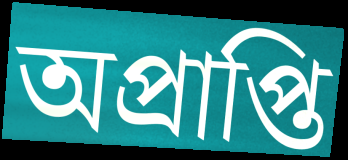
অপ্রাপ্তি